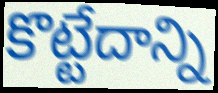
కొట్టేదాన్ని